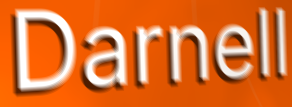
Darnell